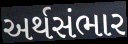
અર્થસંભાર